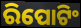
ରିପୋଟିଂ